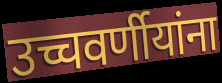
उच्चवर्णीयांना